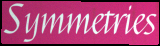
Symmetries